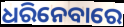
ଧରିନେବାରେ